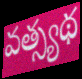
వత్స్యథ